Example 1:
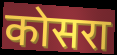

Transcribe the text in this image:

कोसरा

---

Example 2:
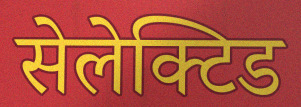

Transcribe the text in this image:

सेलेक्टिड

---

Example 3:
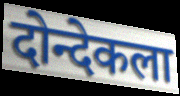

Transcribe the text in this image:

दोन्देकला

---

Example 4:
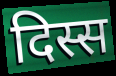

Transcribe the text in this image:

दिस्स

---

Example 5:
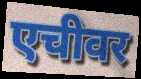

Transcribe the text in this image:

एचीवर